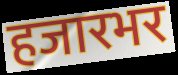
हजारभर